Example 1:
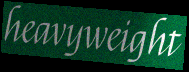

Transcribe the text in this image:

heavyweight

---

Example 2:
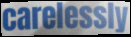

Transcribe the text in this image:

carelessly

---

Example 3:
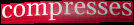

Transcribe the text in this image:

compresses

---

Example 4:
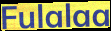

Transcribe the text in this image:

Fulalaa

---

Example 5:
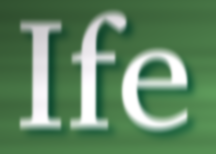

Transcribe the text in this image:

Ife